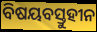
ବିଷୟବସ୍ତୁହୀନ